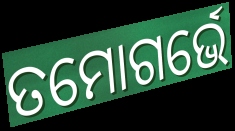
ତମୋଗର୍ଭେ